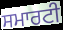
ਸਮਾਰਟੀ